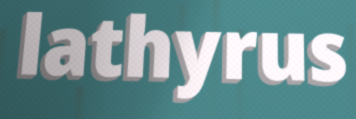
lathyrus